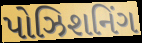
પોઝિશનિંગ